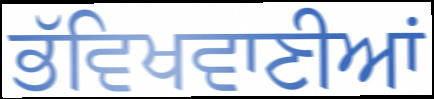
ਭੱਵਿਖਵਾਣੀਆਂ